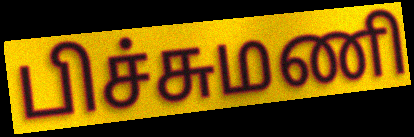
பிச்சுமணி